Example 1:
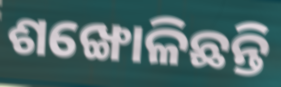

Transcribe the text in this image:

ଶଙ୍ଖୋଳିଛନ୍ତି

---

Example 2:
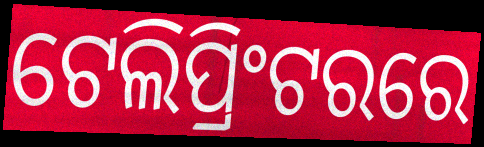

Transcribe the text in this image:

ଟେଲିପ୍ରିଂଟରରେ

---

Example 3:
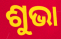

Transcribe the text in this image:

ଶୁଭା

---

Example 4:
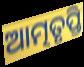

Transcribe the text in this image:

ଆତ୍ମତୃପ୍ତି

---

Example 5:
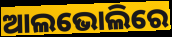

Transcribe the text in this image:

ଆଲଭୋଲିରେ